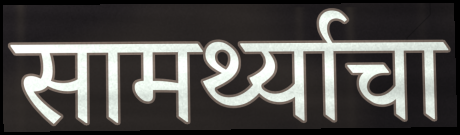
सामर्थ्याचा